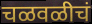
चळवळीचं